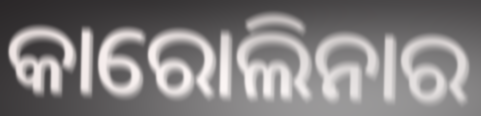
କାରୋଲିନାର